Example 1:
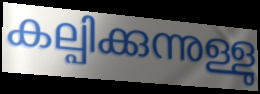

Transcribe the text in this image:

കല്പിക്കുന്നുള്ളു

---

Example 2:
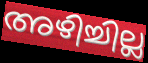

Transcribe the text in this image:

അഴിച്ചില്ല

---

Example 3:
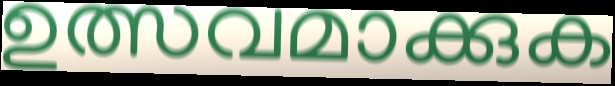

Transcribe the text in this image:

ഉത്സവമാക്കുക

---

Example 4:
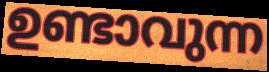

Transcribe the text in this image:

ഉണ്ടാവുന്ന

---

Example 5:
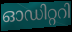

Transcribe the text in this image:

ഓഡിറ്ററി